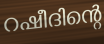
റഷീദിന്റെ